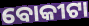
ବୋକୀଟା